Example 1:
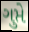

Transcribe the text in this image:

ગુપ્તે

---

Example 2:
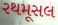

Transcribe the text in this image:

રથમૂસલ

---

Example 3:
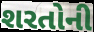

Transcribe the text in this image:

શરતોની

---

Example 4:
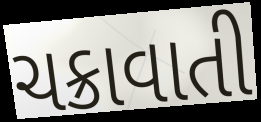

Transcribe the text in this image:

ચક્રાવાતી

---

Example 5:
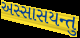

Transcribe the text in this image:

અસ્સાસયન્તુ